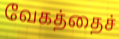
வேகத்தைச்